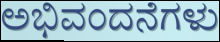
ಅಭಿವಂದನೆಗಳು